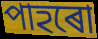
পাহৰো